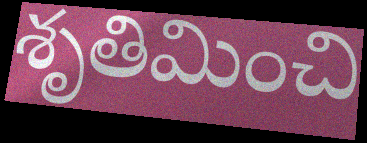
శృతిమించి